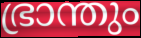
ഭ്രാന്തും